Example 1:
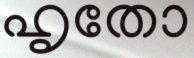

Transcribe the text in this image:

ഹൃതോ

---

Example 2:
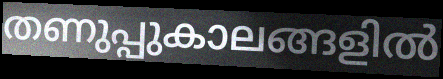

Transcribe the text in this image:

തണുപ്പുകാലങ്ങളിൽ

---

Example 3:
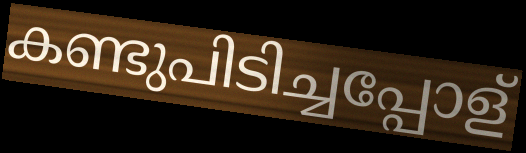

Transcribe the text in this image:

കണ്ടുപിടിച്ചപ്പോള്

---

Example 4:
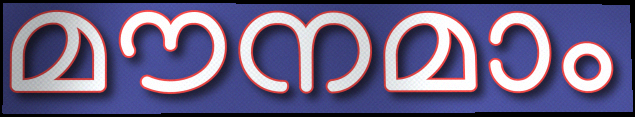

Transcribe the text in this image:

മൗനമാം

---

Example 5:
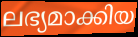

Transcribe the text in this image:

ലഭ്യമാക്കിയ